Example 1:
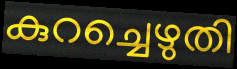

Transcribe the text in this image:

കുറച്ചെഴുതി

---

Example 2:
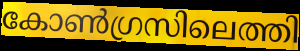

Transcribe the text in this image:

കോൺഗ്രസിലെത്തി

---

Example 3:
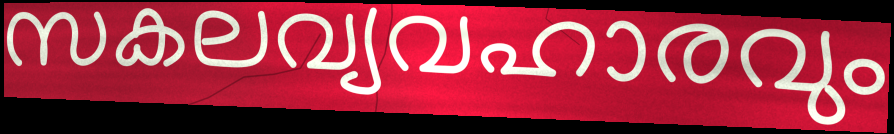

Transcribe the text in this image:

സകലവ്യവഹാരവും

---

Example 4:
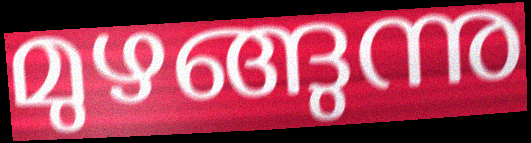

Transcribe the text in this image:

മുഴങ്ങുന്നു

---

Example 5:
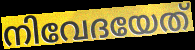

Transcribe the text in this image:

നിവേദയേത്